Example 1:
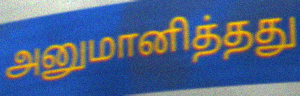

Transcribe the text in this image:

அனுமானித்தது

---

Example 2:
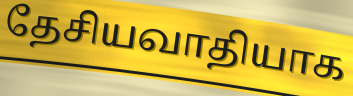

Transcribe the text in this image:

தேசியவாதியாக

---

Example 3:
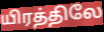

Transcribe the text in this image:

யிரத்திலே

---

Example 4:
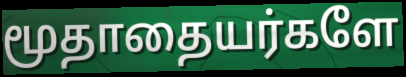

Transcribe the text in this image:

மூதாதையர்களே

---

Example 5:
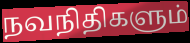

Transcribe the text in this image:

நவநிதிகளும்